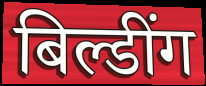
बिल्डींग